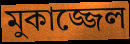
মুকাজ্জেল